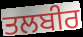
ਤਲਬੀਰ